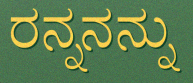
ರನ್ನನನ್ನು